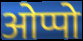
ओप्पो